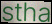
stha